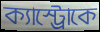
ক্যাস্ট্রোকে